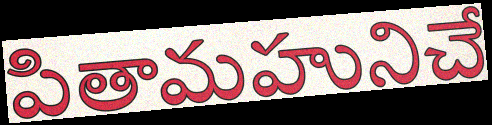
పితామహునిచే